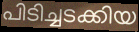
പിടിച്ചടക്കിയ